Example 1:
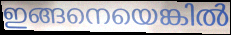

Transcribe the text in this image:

ഇങ്ങനെയെങ്കിൽ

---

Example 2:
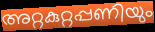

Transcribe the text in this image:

അറ്റകുറ്റപ്പണിയും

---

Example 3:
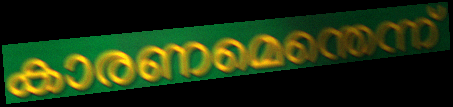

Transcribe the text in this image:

കാരണമെന്തെന്ന്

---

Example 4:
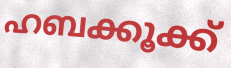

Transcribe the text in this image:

ഹബക്കൂക്ക്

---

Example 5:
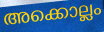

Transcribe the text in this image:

അക്കൊല്ലം